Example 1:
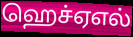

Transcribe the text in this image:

ஹெச்ஏஎல்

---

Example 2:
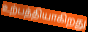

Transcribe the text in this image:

உற்பத்தியாகிறது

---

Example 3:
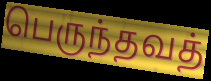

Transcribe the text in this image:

பெருந்தவத்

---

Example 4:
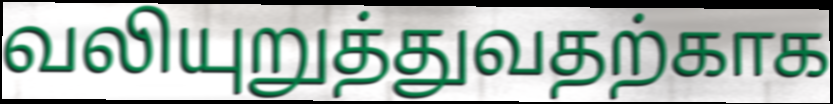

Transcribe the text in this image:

வலியுறுத்துவதற்காக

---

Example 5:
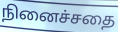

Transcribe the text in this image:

நினைச்சதை